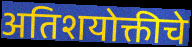
अतिशयोक्तीचे